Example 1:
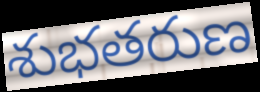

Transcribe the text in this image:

శుభతరుణ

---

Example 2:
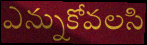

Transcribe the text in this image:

ఎన్నుకోవలసి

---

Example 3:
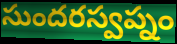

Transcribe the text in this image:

సుందరస్వప్నం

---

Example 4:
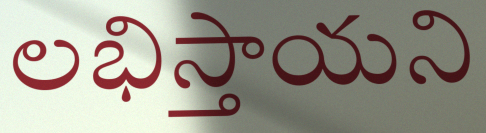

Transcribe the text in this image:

లభిస్తాయని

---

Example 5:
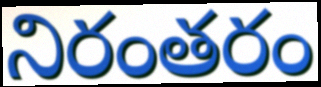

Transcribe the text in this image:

నిరంతరం